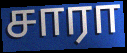
சாரா